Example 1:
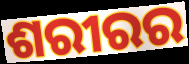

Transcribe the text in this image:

ଶରୀରର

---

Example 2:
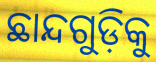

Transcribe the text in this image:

ଛାନ୍ଦଗୁଡ଼ିକୁ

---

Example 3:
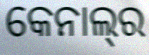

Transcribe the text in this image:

କେନାଲ୍‍ର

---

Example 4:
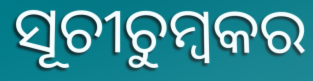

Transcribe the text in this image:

ସୂଚୀଚୁମ୍ବକର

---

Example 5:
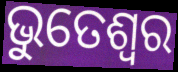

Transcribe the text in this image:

ଭୁତେଶ୍ୱର